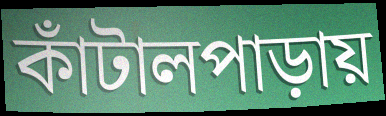
কাঁটালপাড়ায়